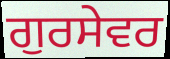
ਗੁਰਸੇਵਰ